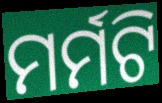
ମର୍ମଟି